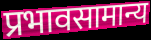
प्रभावसामान्य